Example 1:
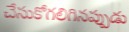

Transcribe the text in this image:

చేసుకోగలిగినప్పుడు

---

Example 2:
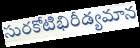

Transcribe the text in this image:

సురకోటిభిరీడ్యమాన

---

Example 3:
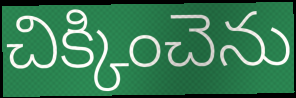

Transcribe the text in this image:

చిక్కించెను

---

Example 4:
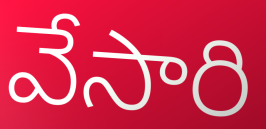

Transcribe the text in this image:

వేసారి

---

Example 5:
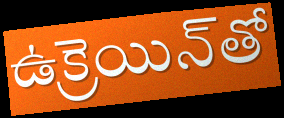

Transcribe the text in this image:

ఉక్రెయిన్‌తో